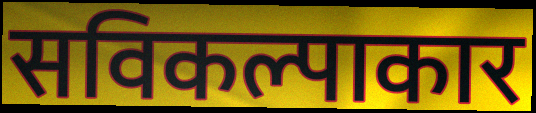
सविकल्पाकार